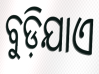
ବୁଡ଼ିଯାଏ